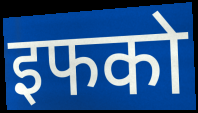
इफको